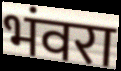
भंवरा